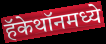
हॅकेथॉनमध्ये